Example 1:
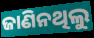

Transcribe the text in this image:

ଜାଣିନଥିଲୁ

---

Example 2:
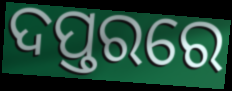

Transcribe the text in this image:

ଦପ୍ତରରେ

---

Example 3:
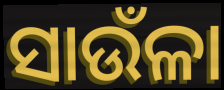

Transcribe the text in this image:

ସାଉଁଳା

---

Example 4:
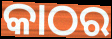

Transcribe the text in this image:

କାଠର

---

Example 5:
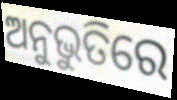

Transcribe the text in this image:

ଅନୁଭୁତିରେ